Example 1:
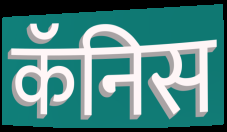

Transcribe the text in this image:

कॅनिस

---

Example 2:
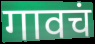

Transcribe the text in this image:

गावचं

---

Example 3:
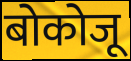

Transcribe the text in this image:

बोकोजू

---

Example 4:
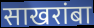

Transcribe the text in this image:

साखरांबा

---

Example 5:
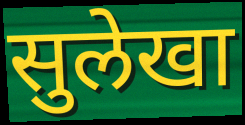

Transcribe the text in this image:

सुलेखा